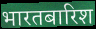
भारतबारिश